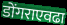
डोंगराएवढा